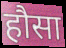
हौसा